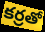
కర్రతో